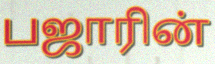
பஜாரின்